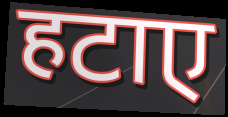
हटाए